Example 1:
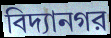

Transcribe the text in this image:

বিদ্যানগর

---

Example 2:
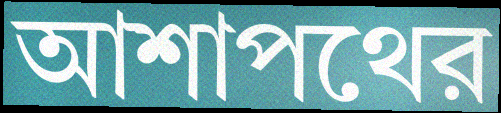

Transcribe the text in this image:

আশাপথের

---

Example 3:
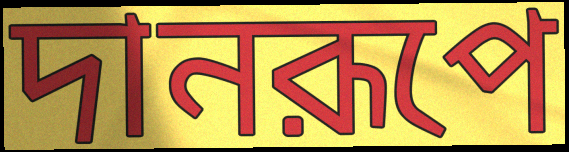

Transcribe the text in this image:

দানরূপে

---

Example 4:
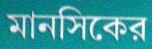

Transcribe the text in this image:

মানসিকের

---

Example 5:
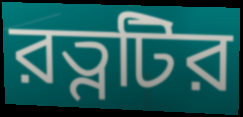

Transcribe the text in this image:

রত্নটির